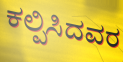
ಕಲ್ಪಿಸಿದವರ